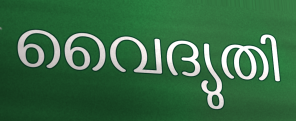
വൈദ്യുതി